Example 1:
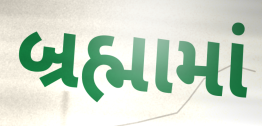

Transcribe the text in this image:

બ્રહ્મામાં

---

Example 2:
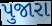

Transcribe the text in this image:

પુજારા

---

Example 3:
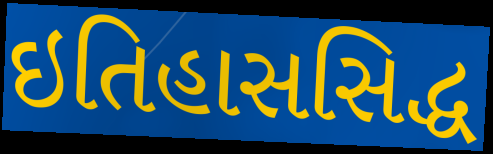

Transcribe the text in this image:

ઇતિહાસસિદ્ધ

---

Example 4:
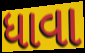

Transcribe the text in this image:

ધાવા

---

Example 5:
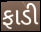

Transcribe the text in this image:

ફાડી